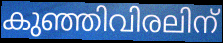
കുഞ്ഞിവിരലിന്